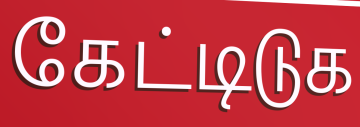
கேட்டிடுக